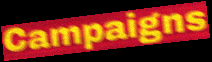
Campaigns